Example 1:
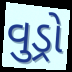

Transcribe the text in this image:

વુડ્રો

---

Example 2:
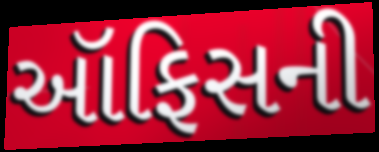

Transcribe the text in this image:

ઑફિસની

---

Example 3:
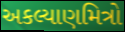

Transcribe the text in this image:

અકલ્યાણમિત્રો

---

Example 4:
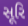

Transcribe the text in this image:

સૂરિ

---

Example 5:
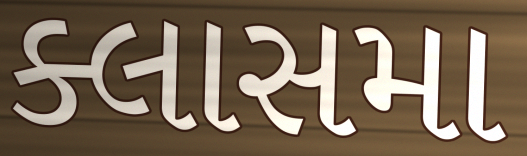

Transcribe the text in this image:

ક્લાસમા